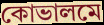
কোভালমে